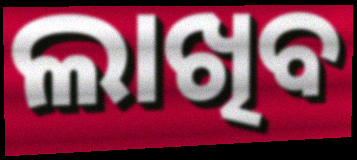
ଲାଖିବ